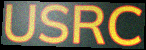
USRC